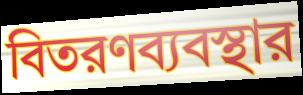
বিতরণব্যবস্থার